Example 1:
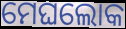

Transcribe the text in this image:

ମେଘଲୋକ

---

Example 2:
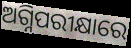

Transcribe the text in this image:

ଅଗ୍ନିପରୀକ୍ଷାରେ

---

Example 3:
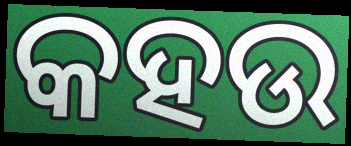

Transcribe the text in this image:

କହଉ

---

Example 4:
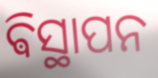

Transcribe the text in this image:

ଵିସ୍ଥାପନ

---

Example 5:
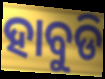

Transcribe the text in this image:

ହାବୁଡି